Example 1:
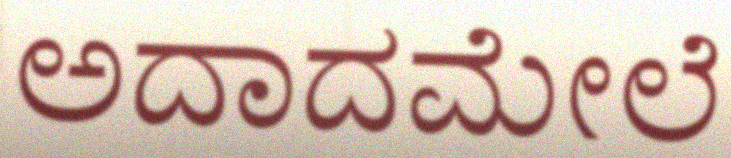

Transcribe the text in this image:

ಅದಾದಮೇಲೆ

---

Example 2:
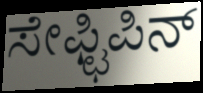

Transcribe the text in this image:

ಸೇಫ್ಟಿಪಿನ್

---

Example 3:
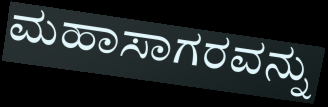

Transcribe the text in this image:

ಮಹಾಸಾಗರವನ್ನು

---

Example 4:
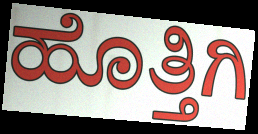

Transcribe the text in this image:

ಹೊತ್ತಿಗಿ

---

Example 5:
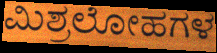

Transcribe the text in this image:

ಮಿಶ್ರಲೋಹಗಳ